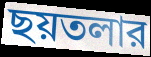
ছয়তলার